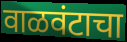
वाळवंटाचा